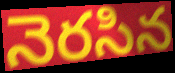
నెరసిన